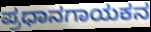
ಪ್ರಧಾನಗಾಯಕನ